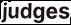
judges